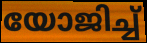
യോജിച്ച്